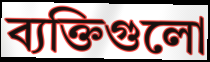
ব্যক্তিগুলো